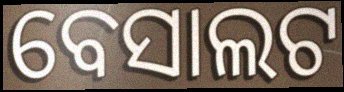
ବେସାଲଟ